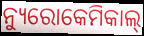
ନ୍ୟୁରୋକେମିକାଲ୍